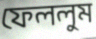
ফেললুম